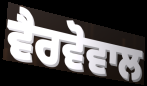
ਵੈਰਵੋਵਾਲ